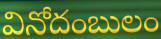
వినోదంబులం